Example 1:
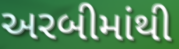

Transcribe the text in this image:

અરબીમાંથી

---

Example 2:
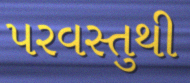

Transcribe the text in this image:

પરવસ્તુથી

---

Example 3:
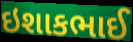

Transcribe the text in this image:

ઇશાકભાઈ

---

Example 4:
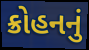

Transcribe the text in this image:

ક્રોહનનું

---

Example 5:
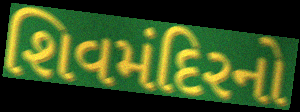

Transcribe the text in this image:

શિવમંદિરનો